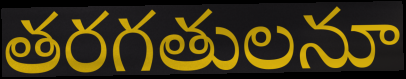
తరగతులనూ